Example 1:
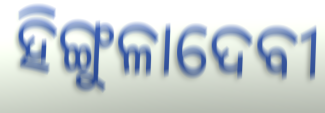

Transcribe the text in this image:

ହିଙ୍ଗୁଳାଦେବୀ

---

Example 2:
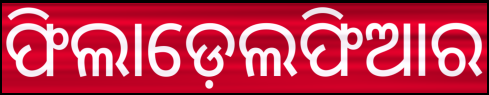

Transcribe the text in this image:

ଫିଲାଡ଼େଲଫିଆର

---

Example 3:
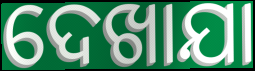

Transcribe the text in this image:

ଦେଖାଯା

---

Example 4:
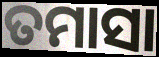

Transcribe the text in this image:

ତମାସା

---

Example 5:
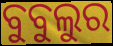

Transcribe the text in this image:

ବୁବୁଲୁର